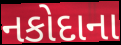
નકોદાના